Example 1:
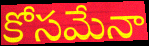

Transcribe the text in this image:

కోసమేనా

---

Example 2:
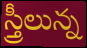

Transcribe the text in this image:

స్త్రీలున్న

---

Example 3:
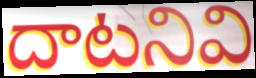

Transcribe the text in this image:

దాటనివి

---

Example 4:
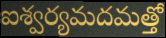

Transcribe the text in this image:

ఐశ్వర్యమదమత్తో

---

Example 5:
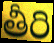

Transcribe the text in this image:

తీరి